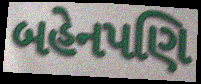
બહેનપણિ